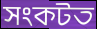
সংকটত